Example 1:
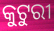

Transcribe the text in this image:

କୁଟୁରୀ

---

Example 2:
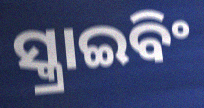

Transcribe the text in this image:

ସ୍କ୍ରାଇବିଂ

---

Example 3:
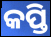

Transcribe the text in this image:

କପ୍ତି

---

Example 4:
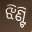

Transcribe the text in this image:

ଝିଣ୍ଟି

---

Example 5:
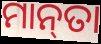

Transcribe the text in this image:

ମାନ୍‌ତା